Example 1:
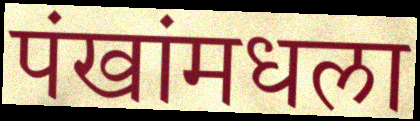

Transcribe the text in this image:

पंखांमधला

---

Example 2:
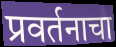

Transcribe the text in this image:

प्रवर्तनाचा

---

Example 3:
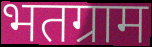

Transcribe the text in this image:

भतग्राम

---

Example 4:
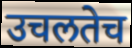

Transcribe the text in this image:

उचलतेच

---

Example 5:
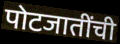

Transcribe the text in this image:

पोटजातींची